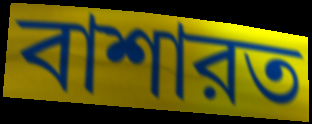
বাশারত